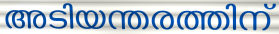
അടിയന്തരത്തിന്